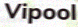
Vipool